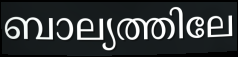
ബാല്യത്തിലേ